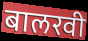
बालरवी